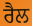
ਰੈਲ